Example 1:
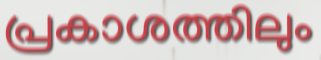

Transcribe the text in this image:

പ്രകാശത്തിലും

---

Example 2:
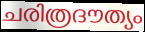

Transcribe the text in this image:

ചരിത്രദൗത്യം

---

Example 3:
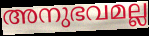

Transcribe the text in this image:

അനുഭവമല്ല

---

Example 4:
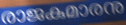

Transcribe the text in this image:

രാജകുമാരനു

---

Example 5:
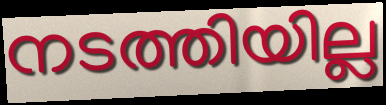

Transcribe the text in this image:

നടത്തിയില്ല